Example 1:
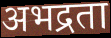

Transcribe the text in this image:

अभद्रता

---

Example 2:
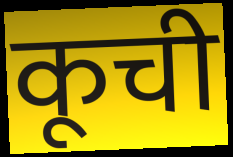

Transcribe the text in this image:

कूची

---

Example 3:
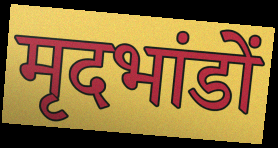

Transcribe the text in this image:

मृदभांडों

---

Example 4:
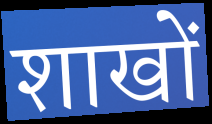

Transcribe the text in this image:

शाखों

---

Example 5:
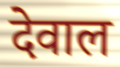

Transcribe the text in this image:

देवाल